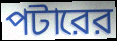
পটারের